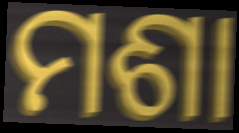
ମଶା